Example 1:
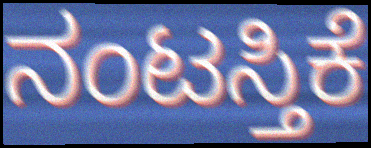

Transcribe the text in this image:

ನಂಟಸ್ತಿಕೆ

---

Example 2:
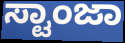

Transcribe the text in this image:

ಸ್ಟಾಂಜಾ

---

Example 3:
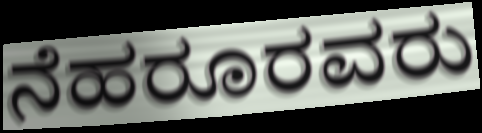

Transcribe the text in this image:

ನೆಹರೂರವರು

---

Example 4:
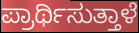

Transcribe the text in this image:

ಪ್ರಾರ್ಥಿಸುತ್ತಾಳೆ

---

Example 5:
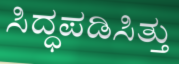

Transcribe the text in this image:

ಸಿದ್ಧಪಡಿಸಿತ್ತು